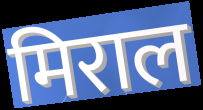
मिराल